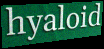
hyaloid